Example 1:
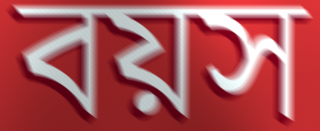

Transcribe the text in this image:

বয়স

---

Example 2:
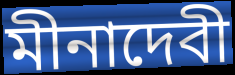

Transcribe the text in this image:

মীনাদেবী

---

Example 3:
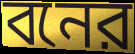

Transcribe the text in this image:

বনের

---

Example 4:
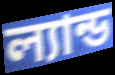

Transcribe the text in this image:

ল্যান্ড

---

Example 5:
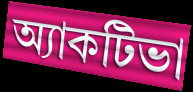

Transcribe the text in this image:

অ্যাকটিভা